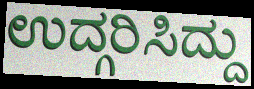
ಉದ್ಗರಿಸಿದ್ದು